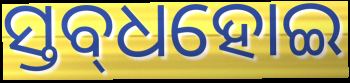
ସ୍ତବ୍‌ଧହୋଇ